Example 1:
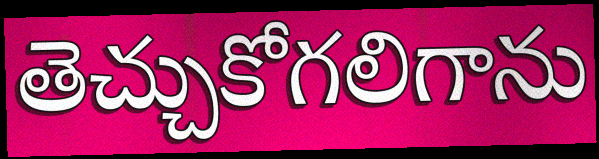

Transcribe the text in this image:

తెచ్చుకోగలిగాను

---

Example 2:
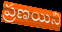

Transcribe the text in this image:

ప్రణయిని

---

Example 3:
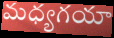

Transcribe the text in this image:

మధ్యగయా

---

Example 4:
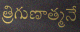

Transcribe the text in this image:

త్రిగుణాత్మనే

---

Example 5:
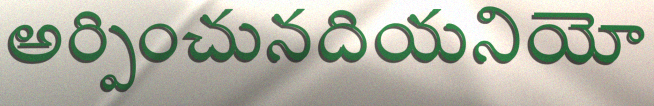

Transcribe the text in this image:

అర్పించునదియనియో